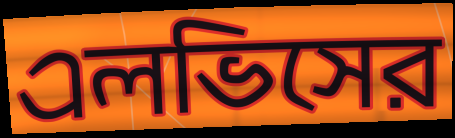
এলভিসের